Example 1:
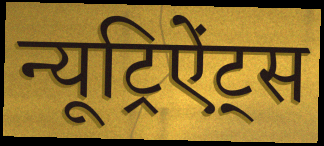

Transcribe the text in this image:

न्यूट्रिऐंट्स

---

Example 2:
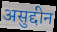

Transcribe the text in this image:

असुद्दीन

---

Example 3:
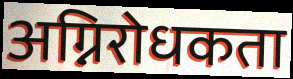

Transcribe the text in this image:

अग्निरोधकता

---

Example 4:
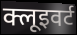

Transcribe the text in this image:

क्लूइवर्ट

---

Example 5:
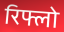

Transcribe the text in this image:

रिफ्लो